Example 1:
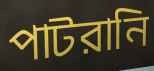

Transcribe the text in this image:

পাটরানি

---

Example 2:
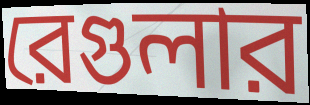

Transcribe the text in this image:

রেগুলার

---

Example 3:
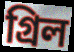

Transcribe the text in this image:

গ্রিল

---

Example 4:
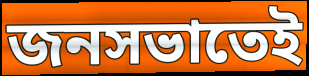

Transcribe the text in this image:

জনসভাতেই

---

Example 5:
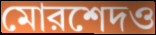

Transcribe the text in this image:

মোরশেদও